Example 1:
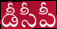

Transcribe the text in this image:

డీసీపీ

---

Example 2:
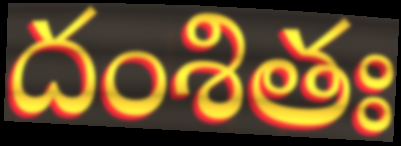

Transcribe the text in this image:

దంశితః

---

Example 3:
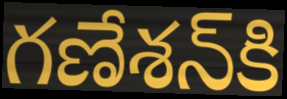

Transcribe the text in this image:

గణేశన్‍కి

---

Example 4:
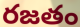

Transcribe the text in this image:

రజతం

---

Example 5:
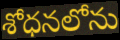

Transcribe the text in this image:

శోధనలోను